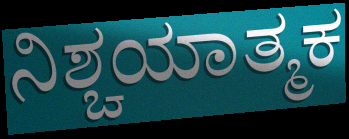
ನಿಶ್ಚಯಾತ್ಮಕ